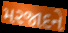
મરજાદને